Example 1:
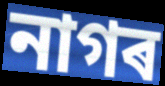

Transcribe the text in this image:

নাগৰ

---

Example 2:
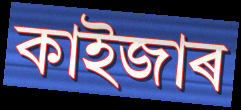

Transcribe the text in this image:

কাইজাৰ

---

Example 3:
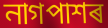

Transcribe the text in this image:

নাগপাশৰ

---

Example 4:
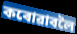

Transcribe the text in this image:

কৰোৱাবলৈ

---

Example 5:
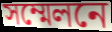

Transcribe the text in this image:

সম্মেলনে